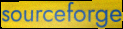
sourceforge